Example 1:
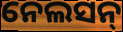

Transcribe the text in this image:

ନେଲସନ୍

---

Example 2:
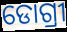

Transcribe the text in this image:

ଡୋଗ୍ରୀ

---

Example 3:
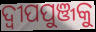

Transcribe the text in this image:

ଦ୍ଵୀପପୁଞ୍ଜକୁ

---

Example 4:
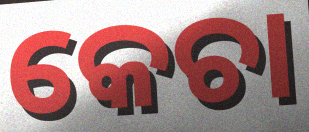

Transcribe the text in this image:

କେଚା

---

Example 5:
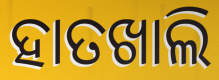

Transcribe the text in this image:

ହାତଖାଲି